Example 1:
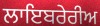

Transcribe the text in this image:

ਲਾਇਬਰੇਰੀਅ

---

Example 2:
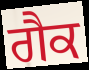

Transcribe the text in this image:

ਗੈਕ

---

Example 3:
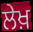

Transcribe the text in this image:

ਲੇਖ਼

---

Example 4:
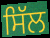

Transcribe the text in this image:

ਸਿੱਲ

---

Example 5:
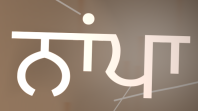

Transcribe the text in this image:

ਨਾਂਪਾ